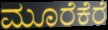
ಮೂರೆಕೆರೆ